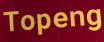
Topeng